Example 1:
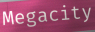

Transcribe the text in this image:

Megacity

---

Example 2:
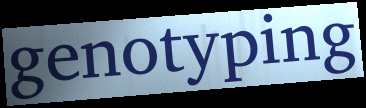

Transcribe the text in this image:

genotyping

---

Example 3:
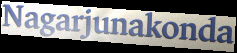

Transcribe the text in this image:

Nagarjunakonda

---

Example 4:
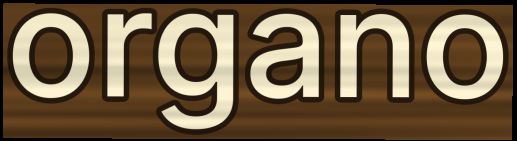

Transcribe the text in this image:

organo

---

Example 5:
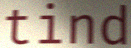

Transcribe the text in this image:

tind